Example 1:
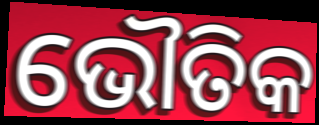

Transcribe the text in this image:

ଭୌତିକ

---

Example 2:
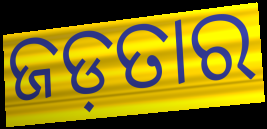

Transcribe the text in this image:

ଜଡ଼ତାର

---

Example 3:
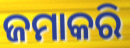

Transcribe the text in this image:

ଜମାକରି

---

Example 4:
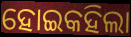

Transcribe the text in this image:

ହୋଇକହିଲା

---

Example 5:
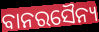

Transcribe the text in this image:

ବାନରସୈନ୍ୟ